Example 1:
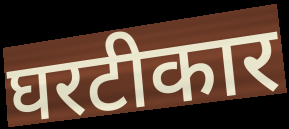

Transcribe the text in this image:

घरटीकार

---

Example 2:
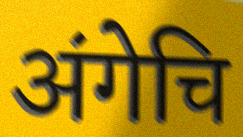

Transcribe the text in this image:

अंगेचि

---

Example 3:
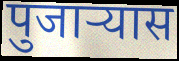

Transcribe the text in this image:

पुजाऱ्यास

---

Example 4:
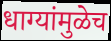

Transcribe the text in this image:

धाग्यांमुळेच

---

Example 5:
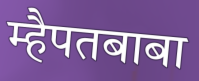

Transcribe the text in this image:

म्हैपतबाबा